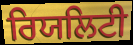
ਰਿਯਲਿਟੀ